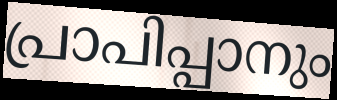
പ്രാപിപ്പാനും